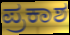
ಪ್ರಕಾಶ